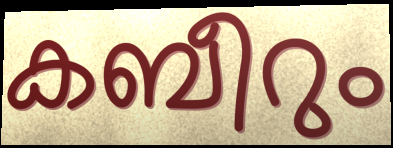
കബീറും